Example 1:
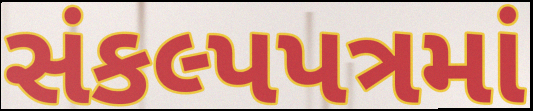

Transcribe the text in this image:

સંકલ્પપત્રમાં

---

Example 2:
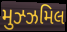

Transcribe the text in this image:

મુઝ્ઝમિલ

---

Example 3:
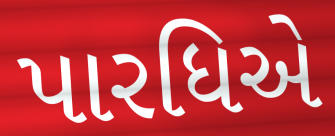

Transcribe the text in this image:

પારધિએ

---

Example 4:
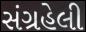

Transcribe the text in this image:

સંગ્રહેલી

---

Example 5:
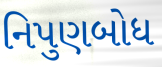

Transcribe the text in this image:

નિપુણબોધ